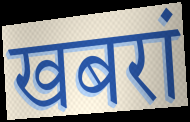
खबरां